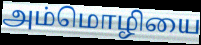
அம்மொழியை